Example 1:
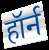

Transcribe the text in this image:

हॉर्न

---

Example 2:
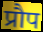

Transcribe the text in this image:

प्रौप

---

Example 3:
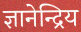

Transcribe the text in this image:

ज्ञानेन्द्रिय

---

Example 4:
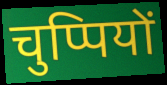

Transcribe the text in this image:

चुप्पियों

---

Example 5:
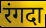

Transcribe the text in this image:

रंगदा